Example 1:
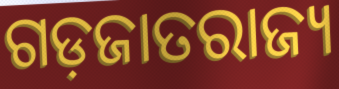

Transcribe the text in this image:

ଗଡ଼ଜାତରାଜ୍ୟ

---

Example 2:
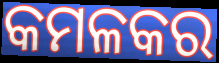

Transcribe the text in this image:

କମଳକର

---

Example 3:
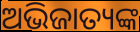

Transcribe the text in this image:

ଅଭିଜାତ୍ୟଙ୍କ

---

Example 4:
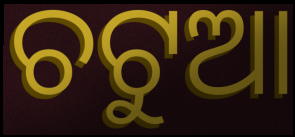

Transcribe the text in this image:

ଚଟୁଆ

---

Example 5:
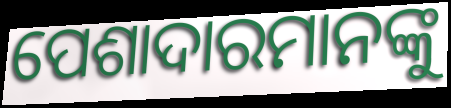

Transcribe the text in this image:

ପେଶାଦାରମାନଙ୍କୁ